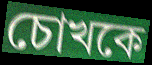
চোখকে